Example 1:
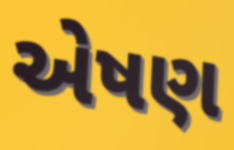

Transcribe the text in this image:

એષણ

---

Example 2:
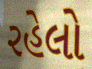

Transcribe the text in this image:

રહેલો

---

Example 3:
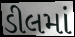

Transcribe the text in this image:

ડીલમાં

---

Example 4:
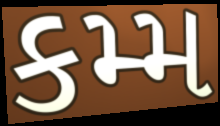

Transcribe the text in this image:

કમ્મ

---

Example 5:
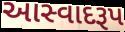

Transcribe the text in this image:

આસ્વાદરૂપ